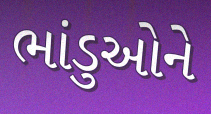
ભાંડુઓને